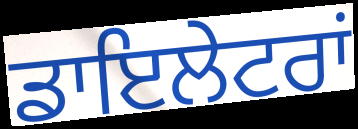
ਡਾਇਲੇਟਰਾਂ